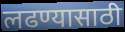
लढण्यासाठी